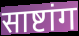
साष्टांग